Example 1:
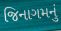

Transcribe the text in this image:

જિનાગમનું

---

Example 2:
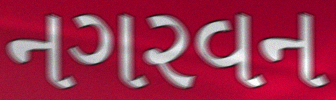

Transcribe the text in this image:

નગરવન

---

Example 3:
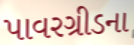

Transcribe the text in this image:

પાવરગ્રીડના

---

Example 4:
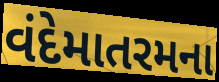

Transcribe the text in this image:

વંદેમાતરમના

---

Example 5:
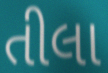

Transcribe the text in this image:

તીલા